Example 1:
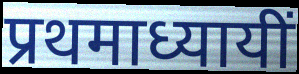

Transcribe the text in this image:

प्रथमाध्यायीं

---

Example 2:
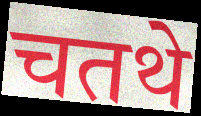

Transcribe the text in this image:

चतथे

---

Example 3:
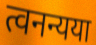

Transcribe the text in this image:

त्वनन्यया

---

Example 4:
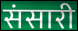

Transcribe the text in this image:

संसारी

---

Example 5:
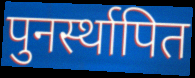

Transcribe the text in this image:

पुनर्स्थापित